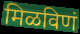
मिळविणं